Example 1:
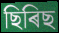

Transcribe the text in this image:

ছিৰিছ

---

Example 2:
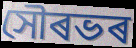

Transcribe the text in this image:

সৌৰভৰ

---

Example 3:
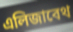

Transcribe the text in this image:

এলিজাবেথ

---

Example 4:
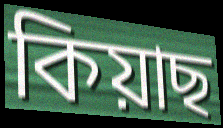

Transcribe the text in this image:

কিয়াছ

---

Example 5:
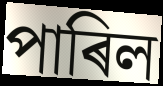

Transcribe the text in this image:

পাৰিল